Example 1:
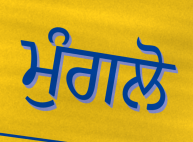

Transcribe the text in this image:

ਮੁੰਗਲੋ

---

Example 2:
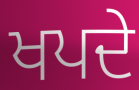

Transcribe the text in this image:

ਖਪਦੇ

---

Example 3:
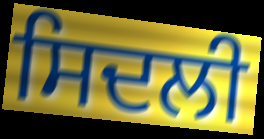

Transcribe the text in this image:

ਸਿਦਲੀ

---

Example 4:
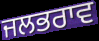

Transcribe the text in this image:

ਜਲਭਰਾਵ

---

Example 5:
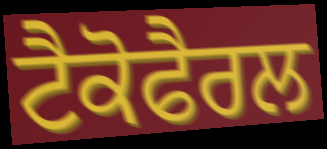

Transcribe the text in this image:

ਟੈਕੋਫੈਰਲ